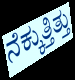
ನೆಕ್ಕುತ್ತಿತ್ತು